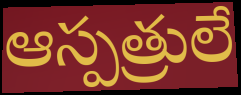
ఆస్పత్రులే